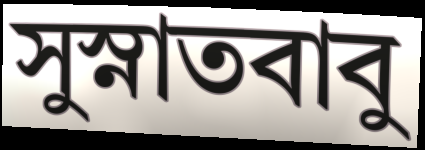
সুস্নাতবাবু